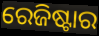
ରେଜିଷ୍ଟାର